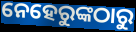
ନେହେରୁଙ୍କଠାରୁ